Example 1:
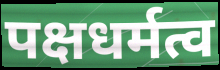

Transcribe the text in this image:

पक्षधर्मत्व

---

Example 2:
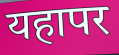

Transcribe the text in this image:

यहापर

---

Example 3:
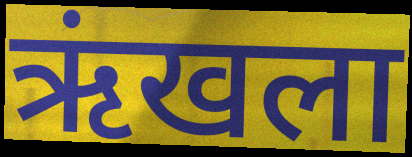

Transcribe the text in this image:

ऋंखला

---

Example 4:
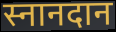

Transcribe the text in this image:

स्नानदान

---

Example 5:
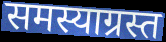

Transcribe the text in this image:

समस्याग्रस्त